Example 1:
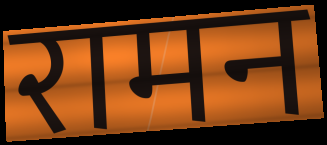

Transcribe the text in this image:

रामन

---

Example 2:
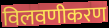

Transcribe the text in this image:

विलवणीकरण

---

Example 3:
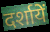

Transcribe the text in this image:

दर्शायें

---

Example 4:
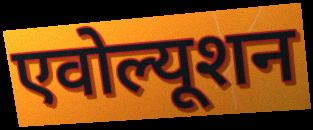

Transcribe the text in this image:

एवोल्यूशन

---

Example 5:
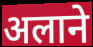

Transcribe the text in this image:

अलाने